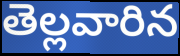
తెల్లవారిన